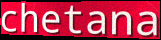
chetana